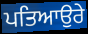
ਪਤਿਆਉਰੇ